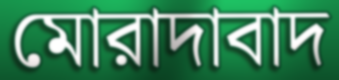
মোরাদাবাদ